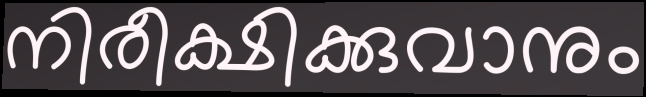
നിരീക്ഷിക്കുവാനും